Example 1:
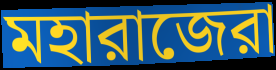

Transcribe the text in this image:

মহারাজেরা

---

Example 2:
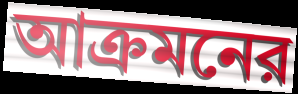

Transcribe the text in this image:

আক্রমনের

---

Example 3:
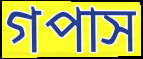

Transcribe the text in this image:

গপাস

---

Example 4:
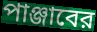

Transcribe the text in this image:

পাঞ্জাবের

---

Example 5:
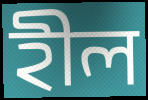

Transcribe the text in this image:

হীল